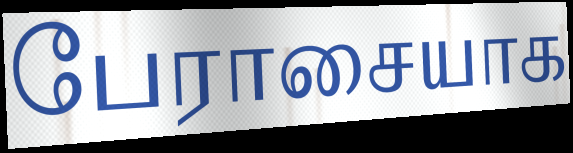
பேராசையாக